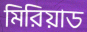
মিরিয়াড